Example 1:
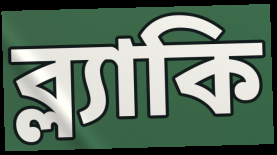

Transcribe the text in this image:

ব্ল্যাকি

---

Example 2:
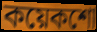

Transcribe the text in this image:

কয়েকশো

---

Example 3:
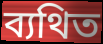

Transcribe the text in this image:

ব্যথিত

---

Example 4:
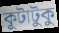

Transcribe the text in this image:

কূটাটুকু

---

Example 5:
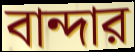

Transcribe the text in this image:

বান্দার